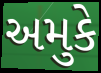
અમુકે